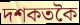
দশকতকৈ